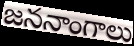
జననాంగాలు